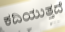
ಕದಿಯುತ್ತದೆ